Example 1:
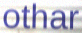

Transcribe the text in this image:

othar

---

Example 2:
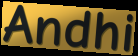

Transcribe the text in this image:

Andhi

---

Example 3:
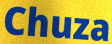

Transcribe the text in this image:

Chuza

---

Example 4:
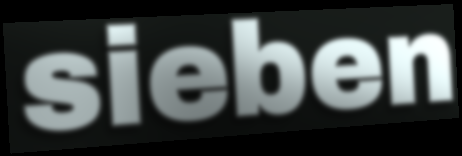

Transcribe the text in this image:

sieben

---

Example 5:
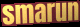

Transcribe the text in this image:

smarun